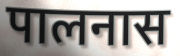
पालनास